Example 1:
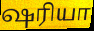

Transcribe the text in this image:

ஷரியா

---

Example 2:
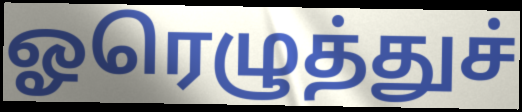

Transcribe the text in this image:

ஓரெழுத்துச்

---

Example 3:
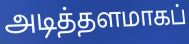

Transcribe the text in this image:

அடித்தளமாகப்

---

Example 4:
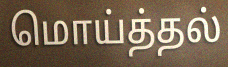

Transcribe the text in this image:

மொய்த்தல்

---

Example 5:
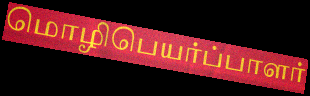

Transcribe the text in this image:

மொழிபெயர்ப்பாளர்